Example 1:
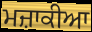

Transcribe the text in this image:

ਮਜ਼ਾਕੀਆ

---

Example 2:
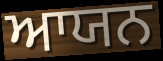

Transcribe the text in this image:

ਆਯਨ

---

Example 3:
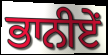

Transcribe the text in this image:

ਭਾਨੀਏਂ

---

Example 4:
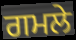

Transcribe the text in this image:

ਗਮਲੇ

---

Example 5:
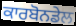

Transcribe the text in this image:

ਕਾਰਬੋਨਡੇਲ